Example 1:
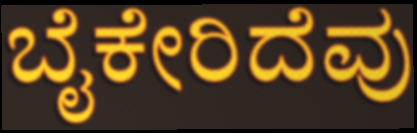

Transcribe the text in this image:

ಬೈಕೇರಿದೆವು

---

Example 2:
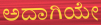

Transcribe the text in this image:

ಅದಾಗಿಯೇ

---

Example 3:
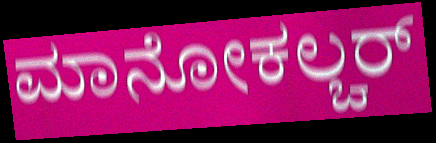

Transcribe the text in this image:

ಮಾನೋಕಲ್ಚರ್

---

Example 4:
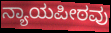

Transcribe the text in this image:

ನ್ಯಾಯಪೀಠವು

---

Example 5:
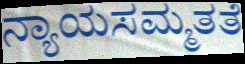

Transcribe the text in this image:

ನ್ಯಾಯಸಮ್ಮತತೆ